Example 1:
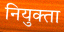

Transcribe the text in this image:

नियुक्ता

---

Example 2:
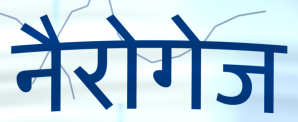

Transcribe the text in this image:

नैरोगेज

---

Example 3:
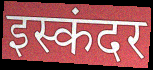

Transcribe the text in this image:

इस्कंदर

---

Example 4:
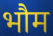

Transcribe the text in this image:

भौम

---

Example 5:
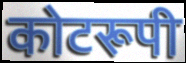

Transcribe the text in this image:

कोटरूपी